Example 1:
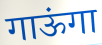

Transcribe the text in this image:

गाऊंगा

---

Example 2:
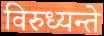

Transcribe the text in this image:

विरुध्यन्ते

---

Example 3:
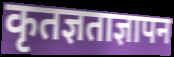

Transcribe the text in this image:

कृतज्ञताज्ञापन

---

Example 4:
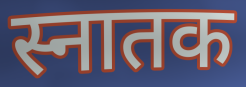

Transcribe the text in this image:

स्नातक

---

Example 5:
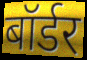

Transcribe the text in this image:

बॉर्डर